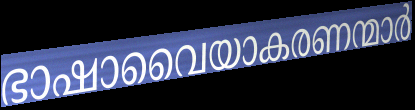
ഭാഷാവൈയാകരണന്മാർ